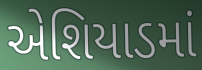
એશિયાડમાં